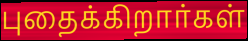
புதைக்கிறார்கள்